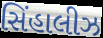
સિંહાલીઝ